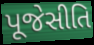
પૂજેસીતિ